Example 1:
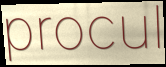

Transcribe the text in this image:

procul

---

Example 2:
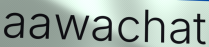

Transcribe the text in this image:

aawachat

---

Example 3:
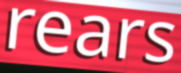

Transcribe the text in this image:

rears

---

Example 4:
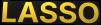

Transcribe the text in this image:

LASSO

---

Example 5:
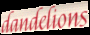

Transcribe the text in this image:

dandelions